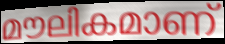
മൗലികമാണ്